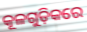
କୂଳଗୁଡ଼ିକରେ